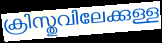
ക്രിസ്തുവിലേക്കുള്ള